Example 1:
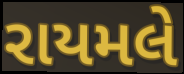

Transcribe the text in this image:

રાયમલે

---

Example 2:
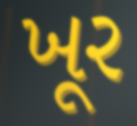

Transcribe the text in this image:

ખૂર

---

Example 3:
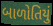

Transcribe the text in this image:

બાળોતિયું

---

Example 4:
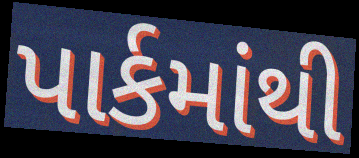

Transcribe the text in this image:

પાર્કમાંથી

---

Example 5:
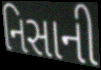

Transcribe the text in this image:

નિસાની